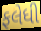
ફલેધી